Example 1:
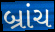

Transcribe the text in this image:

બ્રાંચ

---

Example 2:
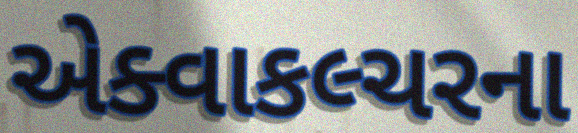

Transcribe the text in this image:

એક્વાકલ્ચરના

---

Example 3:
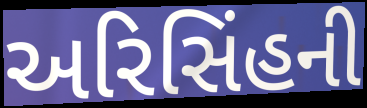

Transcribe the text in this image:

અરિસિંહની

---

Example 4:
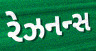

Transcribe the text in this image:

રેઝનન્સ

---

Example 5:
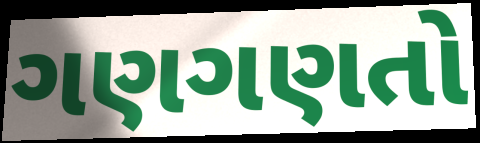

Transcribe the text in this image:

ગણગણતો